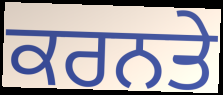
ਕਰਨਤੇ